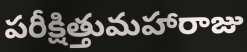
పరీక్షిత్తుమహారాజు